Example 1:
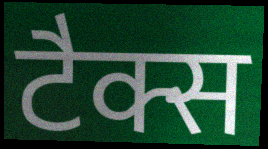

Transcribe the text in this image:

टैक्स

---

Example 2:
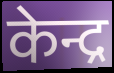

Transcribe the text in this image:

केन्‍द्र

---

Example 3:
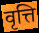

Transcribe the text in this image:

वृत्ति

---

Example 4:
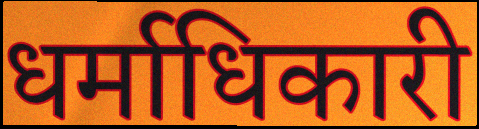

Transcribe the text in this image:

धर्माधिकारी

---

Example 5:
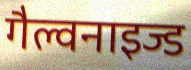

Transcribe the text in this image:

गैल्वनाइज्ड